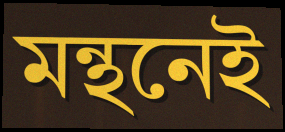
মন্থনেই